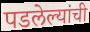
पडलेल्यांची